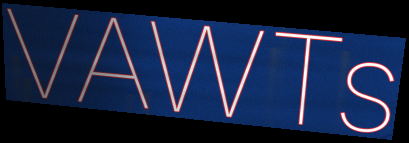
VAWTs